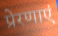
प्रेरणाएं